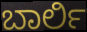
ಬಾರ್ಲಿ